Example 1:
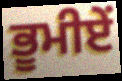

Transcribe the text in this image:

ਭੂਮੀਏਂ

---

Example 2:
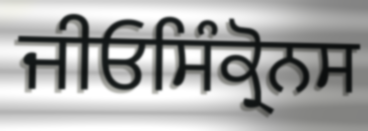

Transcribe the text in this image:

ਜੀਓਸਿੰਕ੍ਰੋਨਸ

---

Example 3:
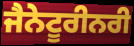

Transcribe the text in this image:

ਜੈਨੇਟੂਰੀਨਰੀ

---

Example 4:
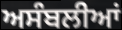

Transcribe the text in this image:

ਅਸੰਬਲੀਆਂ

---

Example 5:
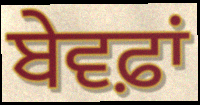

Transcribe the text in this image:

ਬੇਵਫ਼ਾਂ